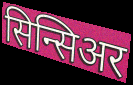
सिन्सिअर